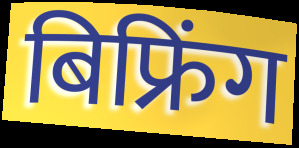
बिफ्रिंग